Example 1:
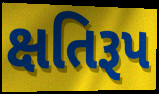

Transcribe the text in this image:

ક્ષતિરૂપ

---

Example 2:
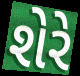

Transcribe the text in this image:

શેરે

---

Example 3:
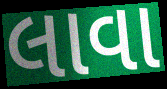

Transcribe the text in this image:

લાવા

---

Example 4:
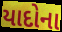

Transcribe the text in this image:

યાદોના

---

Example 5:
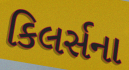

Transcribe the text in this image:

કિલર્સના